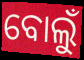
ବୋଲୁଁ